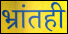
भ्रांतही